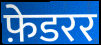
फ़ेडरर